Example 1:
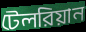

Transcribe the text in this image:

টেলরিয়ান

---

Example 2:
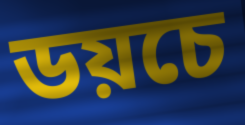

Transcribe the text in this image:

ডয়চে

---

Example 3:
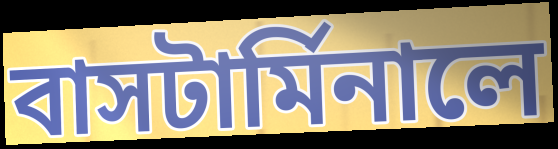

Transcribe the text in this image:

বাসটার্মিনালে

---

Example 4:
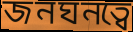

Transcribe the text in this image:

জনঘনত্বে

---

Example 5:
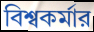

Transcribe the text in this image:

বিশ্বকর্মার